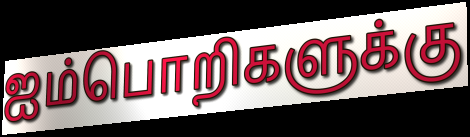
ஐம்பொறிகளுக்கு